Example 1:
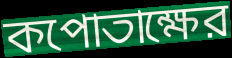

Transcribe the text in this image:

কপোতাক্ষের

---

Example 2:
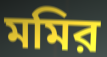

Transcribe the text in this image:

মমির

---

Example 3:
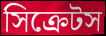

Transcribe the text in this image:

সিক্রেটস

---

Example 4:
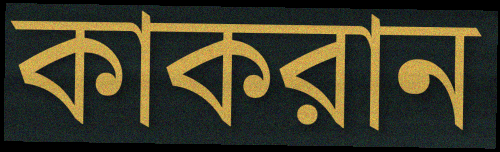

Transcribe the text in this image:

কাকরান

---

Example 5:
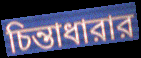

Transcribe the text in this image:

চিন্তাধারার